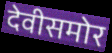
देवीसमोर